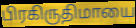
பிரகிருதிமாயை